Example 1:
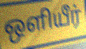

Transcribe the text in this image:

ஒளியீர்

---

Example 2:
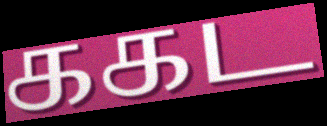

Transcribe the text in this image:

ககட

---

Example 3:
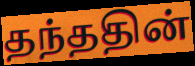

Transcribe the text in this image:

தந்ததின்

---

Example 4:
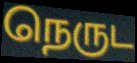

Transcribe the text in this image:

நெருட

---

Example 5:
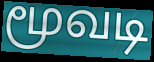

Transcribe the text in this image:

மூவடி